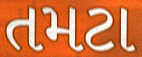
તમટા